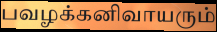
பவழக்கனிவாயரும்